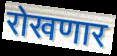
रोखणार